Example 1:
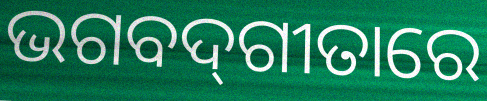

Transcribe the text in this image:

ଭଗବଦ୍‌ଗୀତାରେ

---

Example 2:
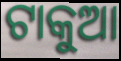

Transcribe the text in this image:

ଟାକୁଆ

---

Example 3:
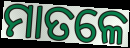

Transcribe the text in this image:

ମାତଳେ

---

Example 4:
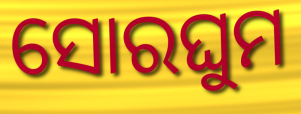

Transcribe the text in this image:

ସୋରଘୁମ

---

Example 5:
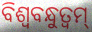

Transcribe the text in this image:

ବିଶ୍ଵବନ୍ଧୁତ୍ଵମ୍